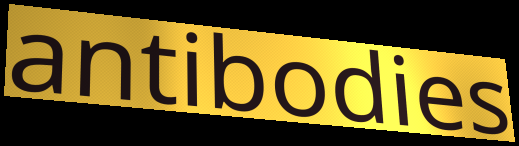
antibodies